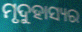
ମୃଦୁହାସ୍ୟର